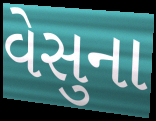
વેસુના